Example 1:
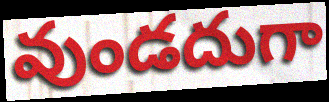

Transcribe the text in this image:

వుండదుగా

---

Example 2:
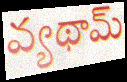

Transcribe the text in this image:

వ్యథామ్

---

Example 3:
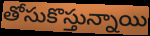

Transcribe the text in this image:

తోసుకొస్తున్నాయి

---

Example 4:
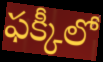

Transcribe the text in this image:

ఫక్కీలో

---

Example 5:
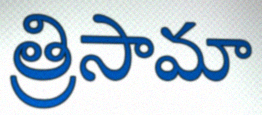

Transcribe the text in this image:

త్రిసామా